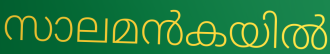
സാലമൻകയിൽ